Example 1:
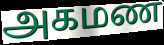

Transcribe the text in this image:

அகமண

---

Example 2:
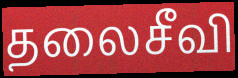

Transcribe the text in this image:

தலைசீவி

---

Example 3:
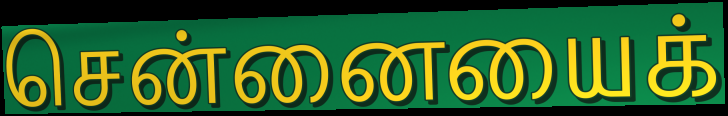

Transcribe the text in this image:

சென்னையைக்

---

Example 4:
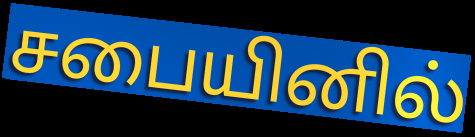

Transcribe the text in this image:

சபையினில்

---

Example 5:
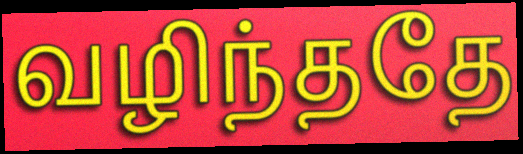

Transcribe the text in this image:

வழிந்ததே